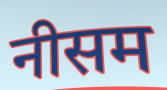
नीसम